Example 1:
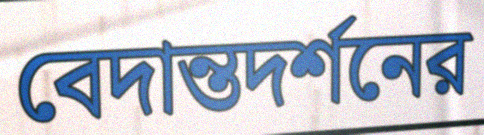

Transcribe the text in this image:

বেদান্তদর্শনের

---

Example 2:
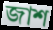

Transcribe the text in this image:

জাশ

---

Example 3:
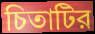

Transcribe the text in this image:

চিতাটির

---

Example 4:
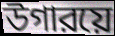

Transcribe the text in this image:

উগারয়ে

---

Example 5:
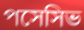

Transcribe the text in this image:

পসেসিভ